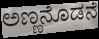
ಅಣ್ಣನೊಡನೆ